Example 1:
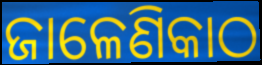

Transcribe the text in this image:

ଜାଳେଣିକାଠ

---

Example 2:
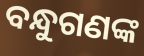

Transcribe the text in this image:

ବନ୍ଧୁଗଣଙ୍କ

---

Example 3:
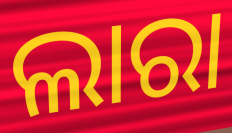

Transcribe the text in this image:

ଲାରା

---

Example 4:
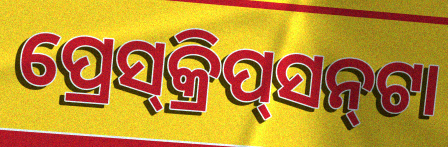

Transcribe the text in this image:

ପ୍ରେସ୍‌କ୍ରିପ୍‌ସନ୍‌ଟା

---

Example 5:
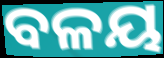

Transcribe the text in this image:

ବଳୟ